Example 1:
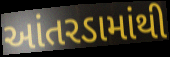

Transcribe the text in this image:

આંતરડામાંથી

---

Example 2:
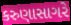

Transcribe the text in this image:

કરુણાસાગરે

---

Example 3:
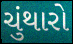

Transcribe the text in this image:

ચુંથારો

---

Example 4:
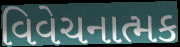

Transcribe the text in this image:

વિવેચનાત્મક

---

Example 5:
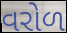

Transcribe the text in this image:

વરોળ